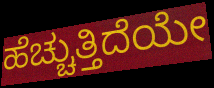
ಹೆಚ್ಚುತ್ತಿದೆಯೇ